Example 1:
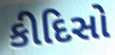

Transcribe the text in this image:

કીદિસો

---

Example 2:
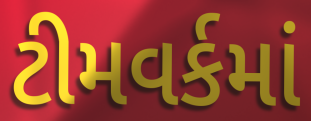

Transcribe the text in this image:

ટીમવર્કમાં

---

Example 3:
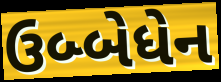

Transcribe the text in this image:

ઉબ્બેધેન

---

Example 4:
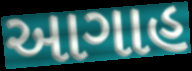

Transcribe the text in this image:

આગાહ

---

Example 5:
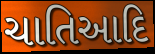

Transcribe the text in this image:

ચાતિઆદિ